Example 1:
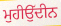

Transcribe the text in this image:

ਮੁਹੀਉੱਦੀਨ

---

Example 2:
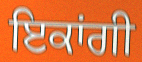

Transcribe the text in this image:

ਇਕਾਂਗੀ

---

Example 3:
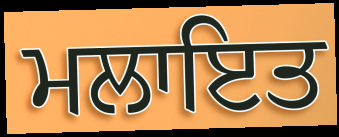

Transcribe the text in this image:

ਮਲਾਇਤ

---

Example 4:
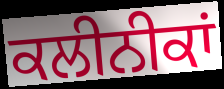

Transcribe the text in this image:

ਕਲੀਨੀਕਾਂ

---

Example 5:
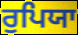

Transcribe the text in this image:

ਰੁਪਿਯਾ